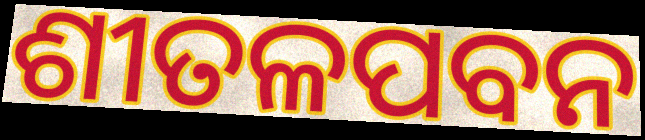
ଶୀତଳପବନ